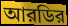
আরডির